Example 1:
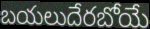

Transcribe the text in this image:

బయలుదేరబోయే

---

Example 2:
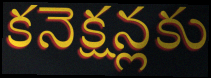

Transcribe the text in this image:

కనెక్షన్లకు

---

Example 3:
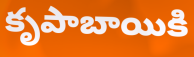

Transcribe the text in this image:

కృపాబాయికి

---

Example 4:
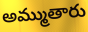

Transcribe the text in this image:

అమ్ముతారు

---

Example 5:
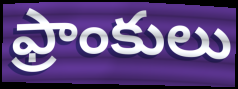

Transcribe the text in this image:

ఫ్రాంకులు